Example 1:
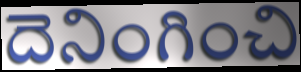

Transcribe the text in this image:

దెనింగించి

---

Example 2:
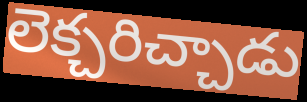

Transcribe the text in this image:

లెక్చరిచ్చాడు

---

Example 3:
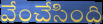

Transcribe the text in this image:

వేంచేసింది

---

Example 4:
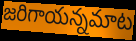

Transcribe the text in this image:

జరిగాయన్నమాట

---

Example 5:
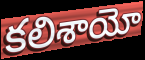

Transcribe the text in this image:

కలిశాయో